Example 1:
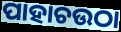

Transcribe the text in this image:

ପାହାଚଉଠା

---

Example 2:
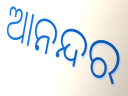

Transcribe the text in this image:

ଆନନ୍ଦର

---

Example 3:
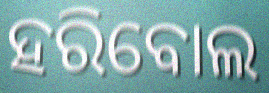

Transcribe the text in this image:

ହରିବୋଲ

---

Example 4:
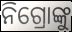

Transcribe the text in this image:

ନିଗ୍ରୋଙ୍କୁ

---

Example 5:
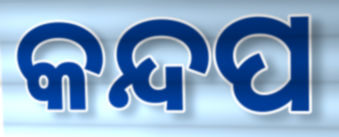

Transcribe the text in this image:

କନ୍ଦପ